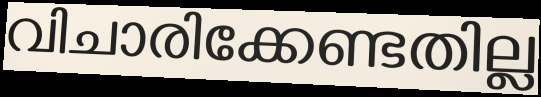
വിചാരിക്കേണ്ടതില്ല